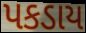
પકડાય